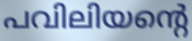
പവിലിയന്റെ